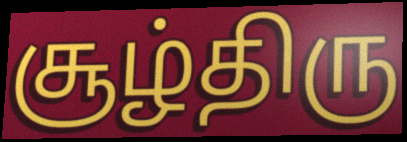
சூழ்திரு